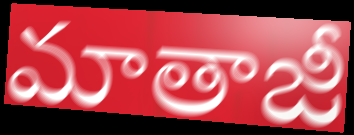
మాతాజీ